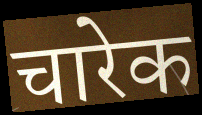
चारेक